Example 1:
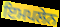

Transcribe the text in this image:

ਇਮਪਲੇਨ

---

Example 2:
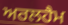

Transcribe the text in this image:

ਅਰਲਹੈਮ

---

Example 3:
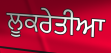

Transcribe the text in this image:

ਲੂਕਰੇਤੀਆ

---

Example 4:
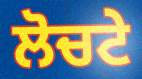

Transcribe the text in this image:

ਲੋਚਟੇ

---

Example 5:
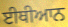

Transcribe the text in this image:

ਈਥੀਆਨ